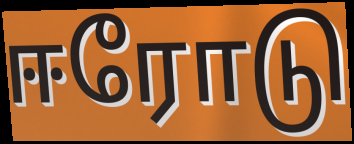
ஈரோடு